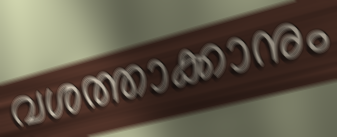
വശത്താക്കാനും